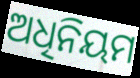
ଅଧିନିୟମ